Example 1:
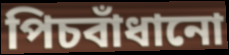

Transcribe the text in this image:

পিচবাঁধানো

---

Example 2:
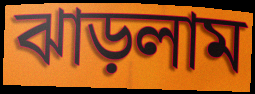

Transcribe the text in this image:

ঝাড়লাম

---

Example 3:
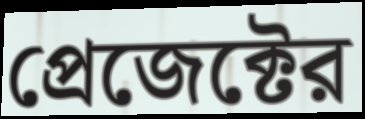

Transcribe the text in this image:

প্রেজেক্টের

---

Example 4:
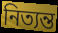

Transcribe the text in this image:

নিত্যন্ত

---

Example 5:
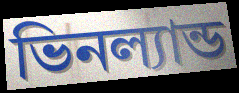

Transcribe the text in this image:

ভিনল্যান্ড